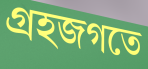
গ্রহজগতে